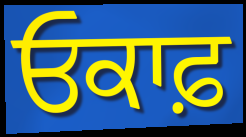
ਓਕਾਫ਼